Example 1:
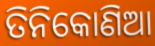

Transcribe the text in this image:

ତିନିକୋଣିଆ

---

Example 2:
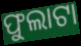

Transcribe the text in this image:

ଫୁଲାଟା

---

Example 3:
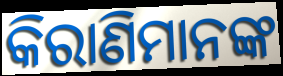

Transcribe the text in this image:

କିରାଣିମାନଙ୍କ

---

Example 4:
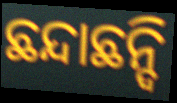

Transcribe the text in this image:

ଛନ୍ଦାଛନ୍ଦି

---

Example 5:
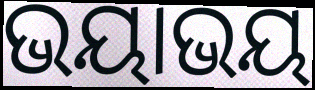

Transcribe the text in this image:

ଭୟାଭୟ